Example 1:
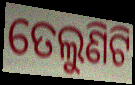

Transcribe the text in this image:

ତେଲୁଣିଟି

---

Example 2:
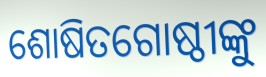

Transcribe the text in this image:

ଶୋଷିତଗୋଷ୍ଠୀଙ୍କୁ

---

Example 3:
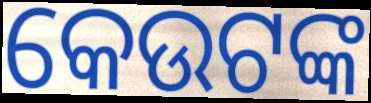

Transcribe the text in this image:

କେଉଟଙ୍କ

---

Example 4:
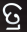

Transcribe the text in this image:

ତ୍ର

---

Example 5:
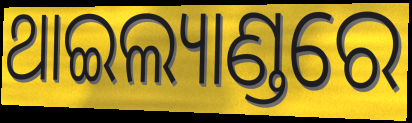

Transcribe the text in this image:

ଥାଇଲ୍ୟାଣ୍ଡରେ